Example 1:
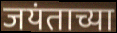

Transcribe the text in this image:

जयंताच्या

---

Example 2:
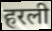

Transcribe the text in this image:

हरली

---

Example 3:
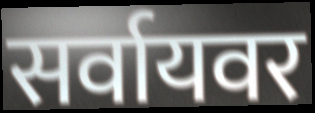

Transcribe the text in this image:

सर्वायवर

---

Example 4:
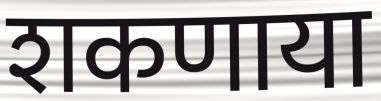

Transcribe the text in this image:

शकणाया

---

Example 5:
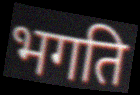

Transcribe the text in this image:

भगति